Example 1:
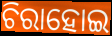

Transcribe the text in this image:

ଚିରାହୋଇ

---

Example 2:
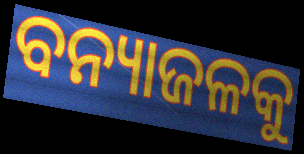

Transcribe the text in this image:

ବନ୍ୟାଜଳକୁ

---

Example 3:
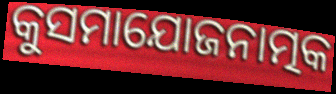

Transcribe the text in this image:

କୁସମାଯୋଜନାତ୍ମକ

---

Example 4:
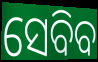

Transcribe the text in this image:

ସେବିବ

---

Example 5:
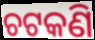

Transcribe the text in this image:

ଚଟକଣି